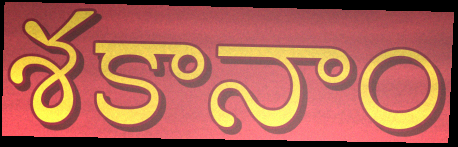
శకానాం